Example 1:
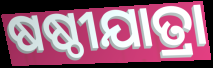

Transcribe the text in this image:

ଷଷ୍ଠୀଯାତ୍ରା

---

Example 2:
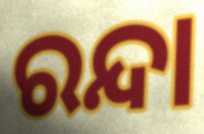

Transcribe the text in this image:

ରନ୍ଦା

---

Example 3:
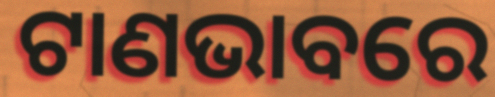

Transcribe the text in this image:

ଟାଣଭାବରେ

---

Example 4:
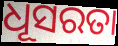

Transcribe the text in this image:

ଧୂସରତା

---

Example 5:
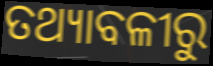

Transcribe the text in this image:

ତଥ୍ୟାବଳୀରୁ